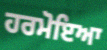
ਹਰਮੋਇਆ